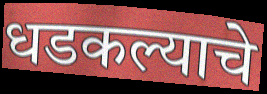
धडकल्याचे